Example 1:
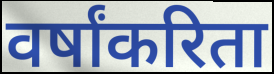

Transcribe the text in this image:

वर्षांकरिता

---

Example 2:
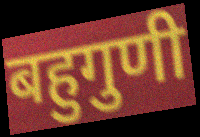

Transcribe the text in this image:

बहुगुणी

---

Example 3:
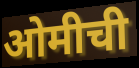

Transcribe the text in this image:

ओमीची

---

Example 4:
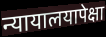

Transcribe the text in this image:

न्यायालयापेक्षा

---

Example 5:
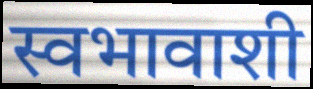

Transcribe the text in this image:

स्वभावाशी